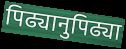
पिढ्यानुपिढ्या